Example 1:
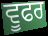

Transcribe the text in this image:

ਵੂਫਰ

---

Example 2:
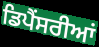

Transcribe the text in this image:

ਡਿਪੈਂਸਰੀਆਂ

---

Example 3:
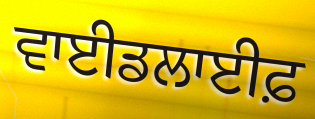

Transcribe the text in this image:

ਵਾਈਡਲਾਈਫ਼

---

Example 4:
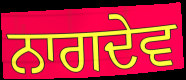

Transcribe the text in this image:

ਨਾਗਦੇਵ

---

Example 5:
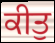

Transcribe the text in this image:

ਕੀਤੁ